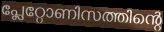
പ്ലേറ്റോണിസത്തിന്റെ